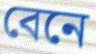
বেনে